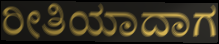
ರೀತಿಯಾದಾಗ